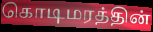
கொடிமரத்தின்